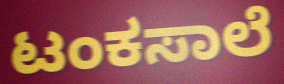
ಟಂಕಸಾಲೆ